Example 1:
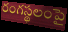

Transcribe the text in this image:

రంగస్థలంపై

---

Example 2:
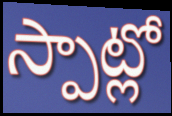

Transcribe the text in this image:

స్పాట్లో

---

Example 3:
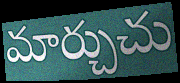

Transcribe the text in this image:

మార్చుచు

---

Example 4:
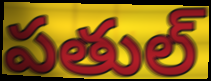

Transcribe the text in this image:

పతుల్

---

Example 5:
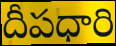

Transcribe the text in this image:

దీపధారి